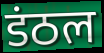
डंठल